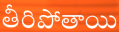
తీరిపోతాయి